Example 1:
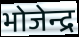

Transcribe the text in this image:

भोजेन्द्र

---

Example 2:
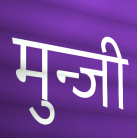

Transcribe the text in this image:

मुन्जी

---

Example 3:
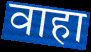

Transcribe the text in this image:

वाहा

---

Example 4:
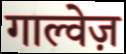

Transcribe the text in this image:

गाल्वेज़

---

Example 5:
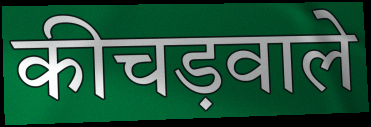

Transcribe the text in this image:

कीचड़वाले